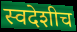
स्वदेशीच